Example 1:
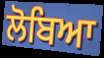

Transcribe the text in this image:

ਲੋਬਿਆ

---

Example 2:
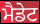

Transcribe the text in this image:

ਮੈਡੇਟ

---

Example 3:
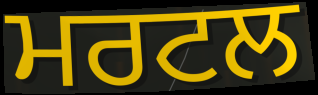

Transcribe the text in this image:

ਮਰਟਲ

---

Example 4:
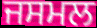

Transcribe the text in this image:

ਜਸਮਲ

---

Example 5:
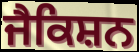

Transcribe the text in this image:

ਜੈਕਿਸ਼ਨ